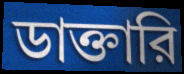
ডাক্তারি